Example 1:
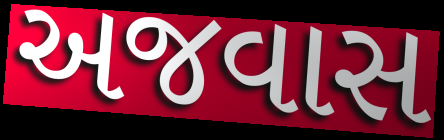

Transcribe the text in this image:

અજવાસ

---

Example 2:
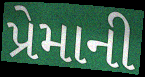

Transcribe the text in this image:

પ્રેમાની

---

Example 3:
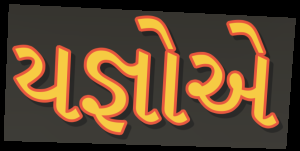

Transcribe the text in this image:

યજ્ઞોએ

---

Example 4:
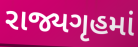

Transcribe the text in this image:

રાજ્યગૃહમાં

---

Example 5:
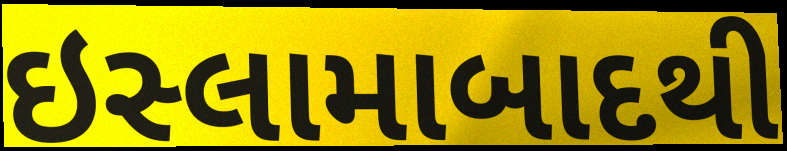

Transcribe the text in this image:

ઇસ્લામાબાદથી